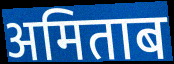
अमिताब